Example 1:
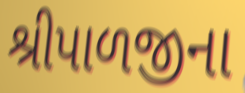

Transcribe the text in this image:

શ્રીપાળજીના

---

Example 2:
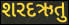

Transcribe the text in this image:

શરદઋતુ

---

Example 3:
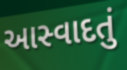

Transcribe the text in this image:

આસ્વાદતું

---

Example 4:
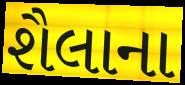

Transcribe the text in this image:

શૈલાના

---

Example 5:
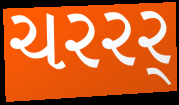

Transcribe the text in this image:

ચરરર્